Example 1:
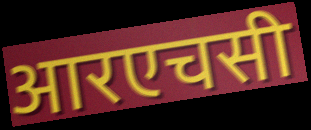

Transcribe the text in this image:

आरएचसी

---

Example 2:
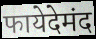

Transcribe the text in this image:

फायेदेमंद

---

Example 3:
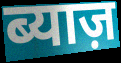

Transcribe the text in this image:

ब्याज़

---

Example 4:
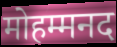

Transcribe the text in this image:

मोहम्मनद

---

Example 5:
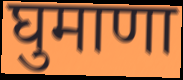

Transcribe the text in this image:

घुमाणा